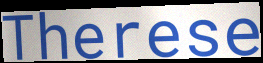
Therese